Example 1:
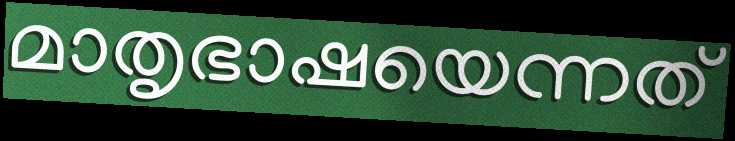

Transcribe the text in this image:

മാതൃഭാഷയെന്നത്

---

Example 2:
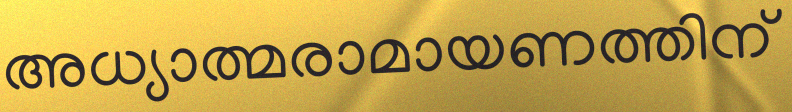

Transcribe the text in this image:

അധ്യാത്മരാമായണത്തിന്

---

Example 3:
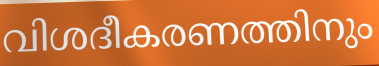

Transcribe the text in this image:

വിശദീകരണത്തിനും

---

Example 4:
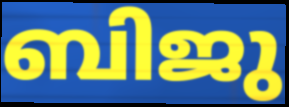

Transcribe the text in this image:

ബിജു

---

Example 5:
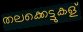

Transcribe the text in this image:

തലക്കെട്ടുകള്